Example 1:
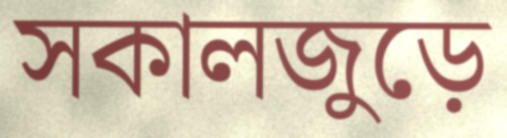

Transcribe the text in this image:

সকালজুড়ে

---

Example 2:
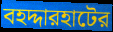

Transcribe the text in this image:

বহদ্দারহাটের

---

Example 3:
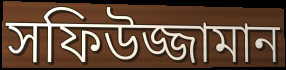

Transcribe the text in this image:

সফিউজ্জামান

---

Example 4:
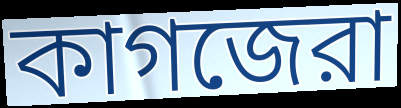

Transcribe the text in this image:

কাগজেরা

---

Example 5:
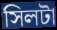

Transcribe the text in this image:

সিলটা